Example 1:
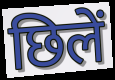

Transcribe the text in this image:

छिलें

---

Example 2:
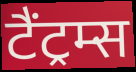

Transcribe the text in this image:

टैंट्रम्स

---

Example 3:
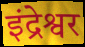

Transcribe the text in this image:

इंद्रेश्वर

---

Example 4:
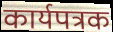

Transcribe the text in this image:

कार्यपत्रक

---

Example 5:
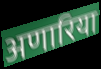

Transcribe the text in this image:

अणारिया